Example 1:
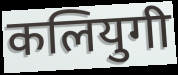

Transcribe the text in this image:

कलियुगी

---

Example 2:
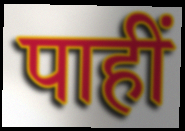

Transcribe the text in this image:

पाहीं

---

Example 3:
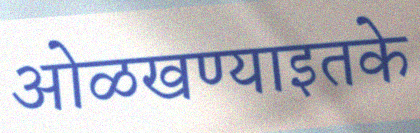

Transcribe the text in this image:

ओळखण्याइतके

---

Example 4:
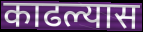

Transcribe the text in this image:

काढल्यास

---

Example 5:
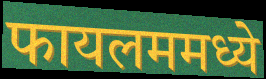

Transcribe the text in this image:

फायलममध्ये